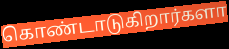
கொண்டாடுகிறார்களா